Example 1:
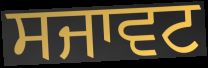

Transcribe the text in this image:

ਸਜਾਵਟ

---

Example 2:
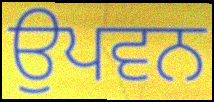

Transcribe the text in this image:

ਉਪਵਨ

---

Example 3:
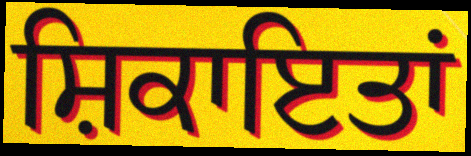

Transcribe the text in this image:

ਸ਼ਿਕਾਇਤਾਂ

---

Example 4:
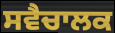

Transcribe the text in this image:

ਸਵੈਚਾਲਕ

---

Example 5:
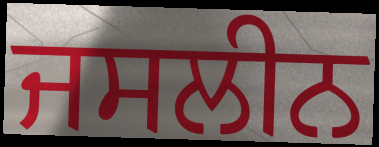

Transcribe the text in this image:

ਜਸਲੀਨ